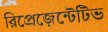
রিপ্রেজ়েন্টেটিভ